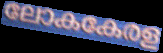
ലോകകേരള